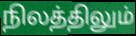
நிலத்திலும்